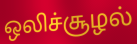
ஒலிச்சூழல்